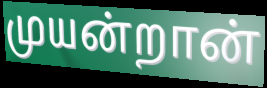
முயன்றான்